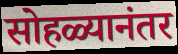
सोहळ्यानंतर